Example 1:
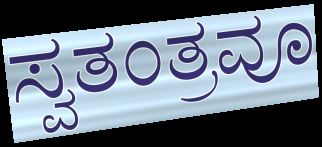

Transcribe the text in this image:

ಸ್ವತಂತ್ರವೂ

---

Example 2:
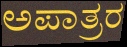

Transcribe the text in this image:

ಅಪಾತ್ರರ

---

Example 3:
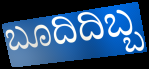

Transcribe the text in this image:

ಬೂದಿದಿಬ್ಬ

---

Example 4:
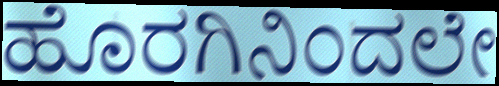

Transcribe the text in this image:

ಹೊರಗಿನಿಂದಲೇ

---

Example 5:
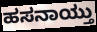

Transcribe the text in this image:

ಹಸನಾಯ್ತು